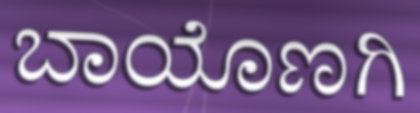
ಬಾಯೊಣಗಿ